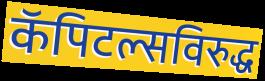
कॅपिटल्सविरुद्ध